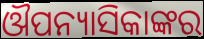
ଔପନ୍ୟାସିକାଙ୍କର